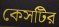
কেসটির